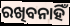
ରଖିବନାହିଁ